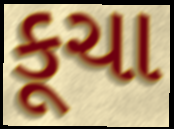
કૂચા